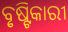
ବୃଷ୍ଟିକାରୀ